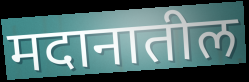
मदानातील